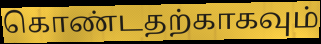
கொண்டதற்காகவும்